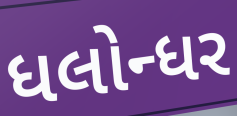
ધલોન્ધર